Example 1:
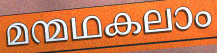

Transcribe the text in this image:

മന്മഥകലാം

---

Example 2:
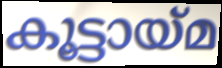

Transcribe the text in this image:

കൂട്ടായ്മ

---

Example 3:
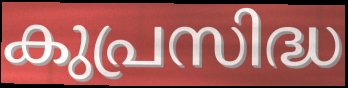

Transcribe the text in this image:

കുപ്രസിദ്ധ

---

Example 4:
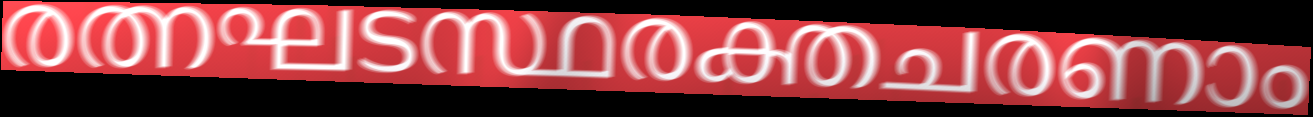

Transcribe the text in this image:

രത്നഘടസ്ഥരക്തചരണാം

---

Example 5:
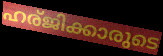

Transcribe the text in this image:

ഹര്ജിക്കാരുടെ